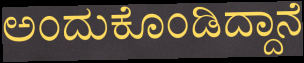
ಅಂದುಕೊಂಡಿದ್ದಾನೆ